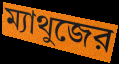
ম্যাথুজের